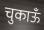
चुकाऊँ